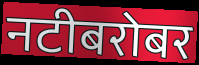
नटीबरोबर